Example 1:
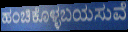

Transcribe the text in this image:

ಹಂಚಿಕೊಳ್ಳಬಯಸುವೆ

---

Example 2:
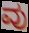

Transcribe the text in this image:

ವು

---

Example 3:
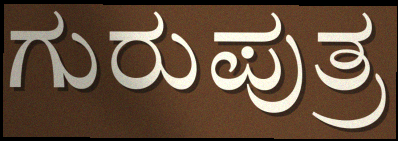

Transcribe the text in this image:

ಗುರುಪುತ್ರ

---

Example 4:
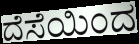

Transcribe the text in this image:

ದೆಸೆಯಿಂದ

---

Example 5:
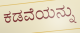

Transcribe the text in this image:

ಕಡವೆಯನ್ನು